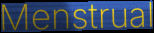
Menstrual